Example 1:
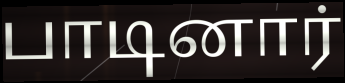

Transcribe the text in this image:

பாடினார்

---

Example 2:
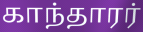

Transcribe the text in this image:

காந்தாரர்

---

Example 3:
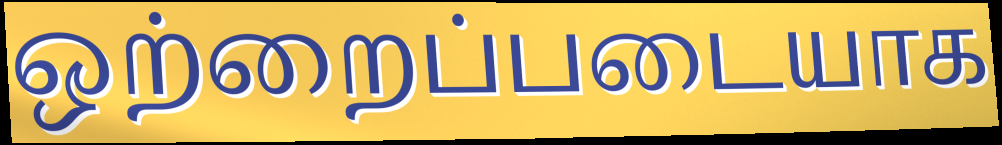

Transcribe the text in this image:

ஒற்றைப்படையாக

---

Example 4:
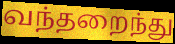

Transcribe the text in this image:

வந்தறைந்து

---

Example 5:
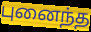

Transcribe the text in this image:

புனைந்த